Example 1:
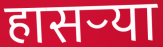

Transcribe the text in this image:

हासऱ्या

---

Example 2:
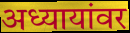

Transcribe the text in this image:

अध्यायांवर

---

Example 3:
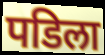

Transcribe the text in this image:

पडिला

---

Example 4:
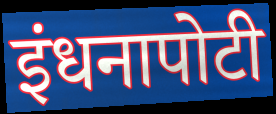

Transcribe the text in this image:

इंधनापोटी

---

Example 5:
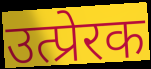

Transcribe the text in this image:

उत्प्रेरक